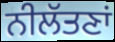
ਨੀਲੱਤਣਾਂ